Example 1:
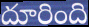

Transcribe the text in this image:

దూరింది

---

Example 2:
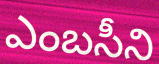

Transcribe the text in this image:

ఎంబసీని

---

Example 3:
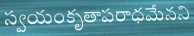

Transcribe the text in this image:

స్వయంకృతాపరాధమేనని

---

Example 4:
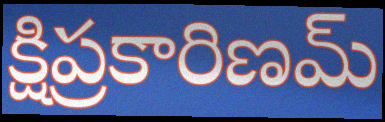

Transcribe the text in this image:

క్షిప్రకారిణమ్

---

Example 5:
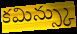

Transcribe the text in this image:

కమిన్స్కు